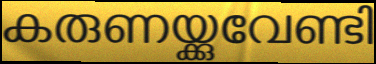
കരുണയ്ക്കുവേണ്ടി